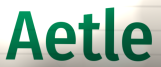
Aetle